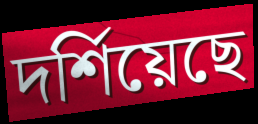
দর্শিয়েছে